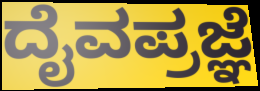
ದೈವಪ್ರಜ್ಞೆ